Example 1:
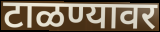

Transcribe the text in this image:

टाळण्यावर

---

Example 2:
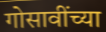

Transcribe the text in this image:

गोसावींच्या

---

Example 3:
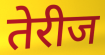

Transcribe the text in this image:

तेरीज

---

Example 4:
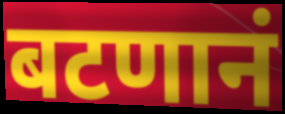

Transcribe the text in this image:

बटणानं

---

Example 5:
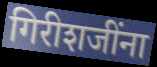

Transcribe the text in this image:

गिरीशजींना